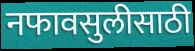
नफावसुलीसाठी